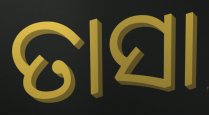
ତାସା